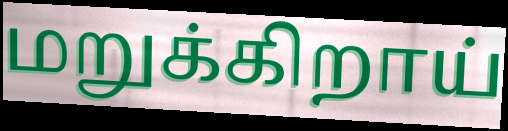
மறுக்கிறாய்